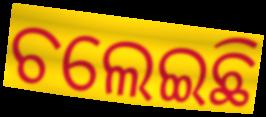
ଚଲେଇଛି